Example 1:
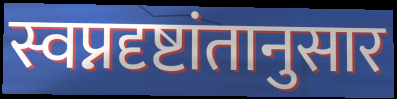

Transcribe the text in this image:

स्वप्नदृष्टांतानुसार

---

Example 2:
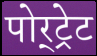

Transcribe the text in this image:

पोर्ट्रेट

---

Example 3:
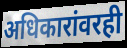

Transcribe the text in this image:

अधिकारांवरही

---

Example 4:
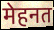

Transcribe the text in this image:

मेहनत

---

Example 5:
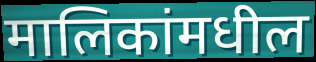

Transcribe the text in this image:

मालिकांमधील